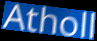
Atholl